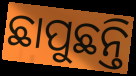
ଛାପୁଛନ୍ତି